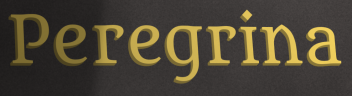
Peregrina